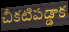
చీకటిపడ్డాక